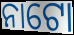
ନାଟୋ